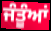
ਜੰਤੂੰਆਂ